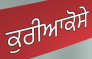
ਕੁਰੀਆਕੋਸੇ